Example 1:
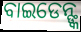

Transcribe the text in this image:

ବାଇଡେନ୍ଙ୍କ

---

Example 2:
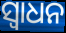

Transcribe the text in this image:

ସ୍ଵାଧନ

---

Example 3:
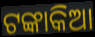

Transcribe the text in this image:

ଟଙ୍କାକିଆ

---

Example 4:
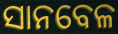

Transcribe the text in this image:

ସାନବେଳ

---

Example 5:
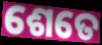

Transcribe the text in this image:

ଶେତେ